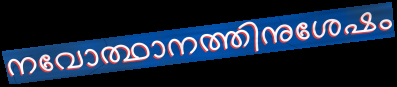
നവോത്ഥാനത്തിനുശേഷം